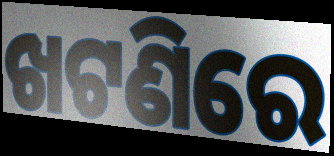
ଖଟଣିରେ